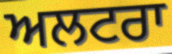
ਅਲਟਰਾ